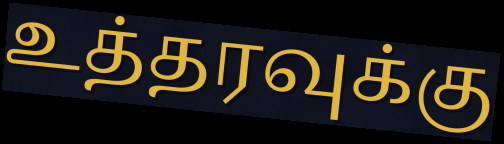
உத்தரவுக்கு